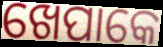
ଖେପାକେ